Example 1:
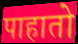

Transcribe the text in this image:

पाहातो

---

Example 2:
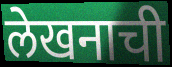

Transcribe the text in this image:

लेखनाची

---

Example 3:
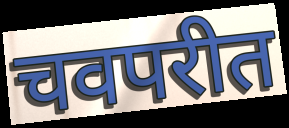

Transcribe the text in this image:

चवपरीत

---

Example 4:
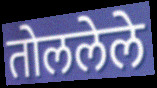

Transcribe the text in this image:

तोललेले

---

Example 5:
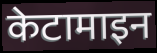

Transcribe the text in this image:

केटामाइन